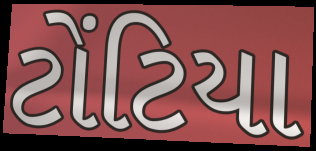
ટોંટિયા